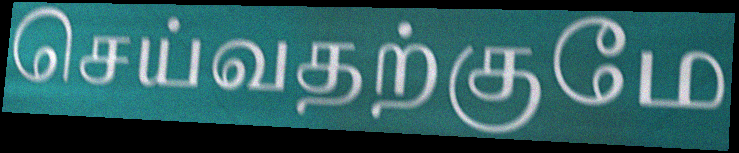
செய்வதற்குமே